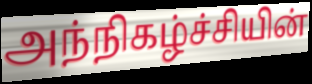
அந்நிகழ்ச்சியின்